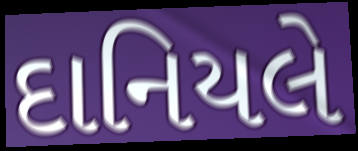
દાનિયલે